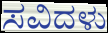
ಸವಿದಳು